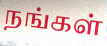
நங்கள்